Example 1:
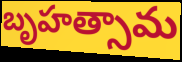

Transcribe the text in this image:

బృహత్సామ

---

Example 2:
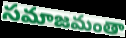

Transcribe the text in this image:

సమాజమంతా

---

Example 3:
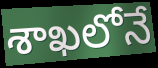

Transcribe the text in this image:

శాఖలోనే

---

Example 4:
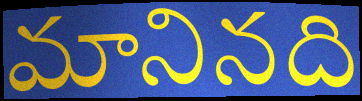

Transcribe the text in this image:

మానినది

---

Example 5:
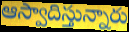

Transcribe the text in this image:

ఆస్వాదిస్తున్నారు